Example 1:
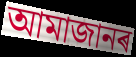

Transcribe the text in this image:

আমাজানৰ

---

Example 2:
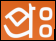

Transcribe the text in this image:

প্ৰঃ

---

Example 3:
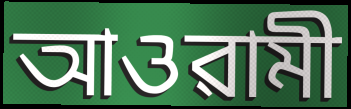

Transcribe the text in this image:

আওৱামী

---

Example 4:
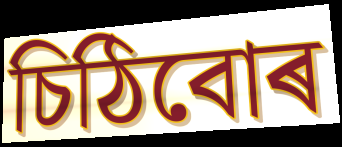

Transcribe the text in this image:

চিঠিবোৰ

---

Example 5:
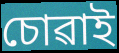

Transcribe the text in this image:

চোৱাই